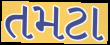
તમટા